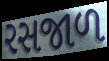
રસજાળ